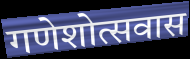
गणेशोत्सवास